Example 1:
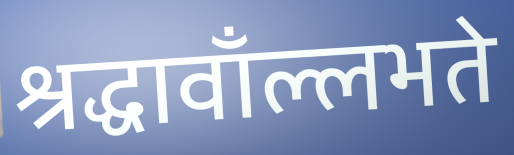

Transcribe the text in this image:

श्रद्धावाँल्लभते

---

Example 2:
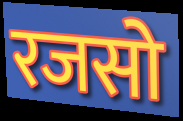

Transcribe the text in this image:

रजसो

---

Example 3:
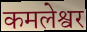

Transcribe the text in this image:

कमलेश्वर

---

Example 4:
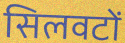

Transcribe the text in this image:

सिलवटों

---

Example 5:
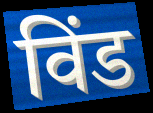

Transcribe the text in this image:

विंड